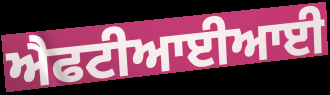
ਐਫਟੀਆਈਆਈ